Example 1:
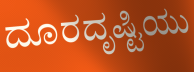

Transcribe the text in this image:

ದೂರದೃಷ್ಟಿಯು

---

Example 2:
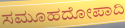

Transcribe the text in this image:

ಸಮೂಹದೋಪಾದಿ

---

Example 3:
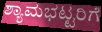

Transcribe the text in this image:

ಶ್ಯಾಮಭಟ್ಟರಿಗೆ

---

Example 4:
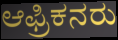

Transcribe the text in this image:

ಆಫ್ರಿಕನರು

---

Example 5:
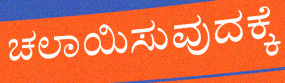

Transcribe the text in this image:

ಚಲಾಯಿಸುವುದಕ್ಕೆ